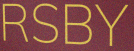
RSBY